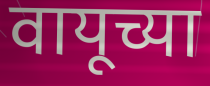
वायूच्या